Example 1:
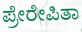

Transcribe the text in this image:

ಪ್ರೇರೇಪಿತಾ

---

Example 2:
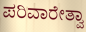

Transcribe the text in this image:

ಪರಿವಾರೇತ್ವಾ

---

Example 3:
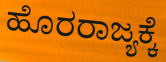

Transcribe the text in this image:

ಹೊರರಾಜ್ಯಕ್ಕೆ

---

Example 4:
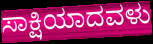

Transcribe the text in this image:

ಸಾಕ್ಷಿಯಾದವಳು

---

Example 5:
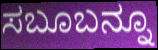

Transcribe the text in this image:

ಸಬೂಬನ್ನೂ